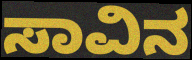
ಸಾವಿನ